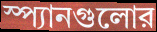
স্প্যানগুলোর